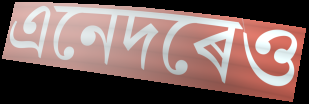
এনেদৰেও